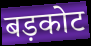
बड़कोट